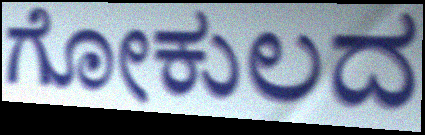
ಗೋಕುಲದ